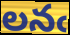
లనఁ